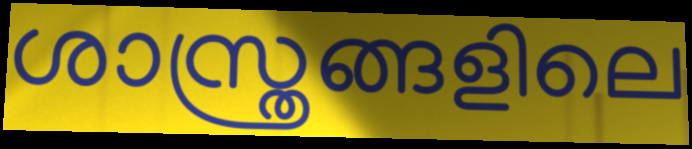
ശാസ്ത്രങ്ങളിലെ